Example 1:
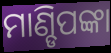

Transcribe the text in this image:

ମାଣ୍ଡିପଙ୍କା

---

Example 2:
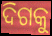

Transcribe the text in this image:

ଦିଗକୁ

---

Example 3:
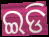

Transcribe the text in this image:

ଇଡି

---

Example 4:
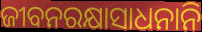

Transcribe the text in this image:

ଜୀବନରକ୍ଷାସାଧନାନି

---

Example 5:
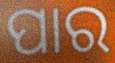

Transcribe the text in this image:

ପାର